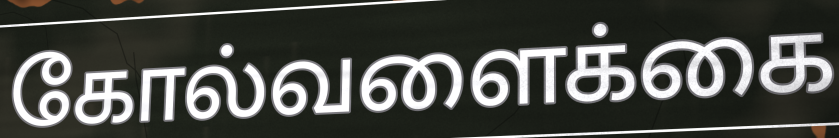
கோல்வளைக்கை